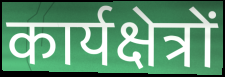
कार्यक्षेत्रों